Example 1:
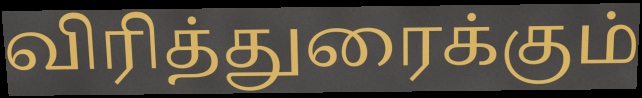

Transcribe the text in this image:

விரித்துரைக்கும்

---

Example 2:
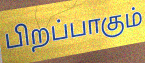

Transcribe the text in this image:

பிறப்பாகும்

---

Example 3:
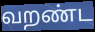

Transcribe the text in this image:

வறண்ட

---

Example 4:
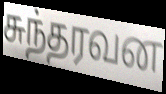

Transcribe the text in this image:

சுந்தரவன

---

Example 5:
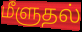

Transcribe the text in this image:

மீளுதல்